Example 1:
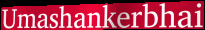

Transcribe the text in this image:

Umashankerbhai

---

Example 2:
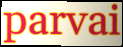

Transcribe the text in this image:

parvai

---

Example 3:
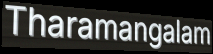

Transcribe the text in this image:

Tharamangalam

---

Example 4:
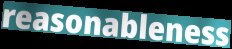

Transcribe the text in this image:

reasonableness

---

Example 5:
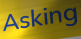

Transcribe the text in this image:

Asking